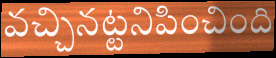
వచ్చినట్టనిపించింది